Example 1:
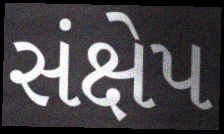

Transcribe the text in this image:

સંક્ષેપ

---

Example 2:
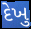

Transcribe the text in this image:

દેખુ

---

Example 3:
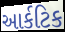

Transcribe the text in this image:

આર્કટિક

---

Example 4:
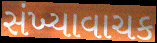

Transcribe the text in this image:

સંખ્યાવાચક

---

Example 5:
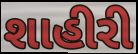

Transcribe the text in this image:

શાહીરી